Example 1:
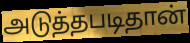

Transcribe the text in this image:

அடுத்தபடிதான்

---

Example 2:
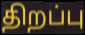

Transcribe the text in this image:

திறப்பு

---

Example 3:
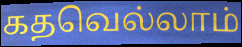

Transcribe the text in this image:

கதவெல்லாம்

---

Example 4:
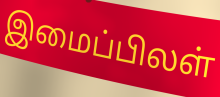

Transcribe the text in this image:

இமைப்பிலள்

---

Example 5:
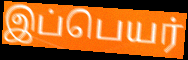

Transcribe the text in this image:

இப்பெயர்